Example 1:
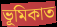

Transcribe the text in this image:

ভূমিকাত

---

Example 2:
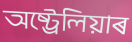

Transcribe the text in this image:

অষ্ট্ৰেলিয়াৰ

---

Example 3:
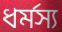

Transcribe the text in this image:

ধৰ্মস্য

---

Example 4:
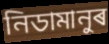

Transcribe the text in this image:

নিডামানুৰ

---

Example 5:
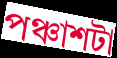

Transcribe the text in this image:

পঞ্চাশটা